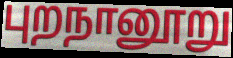
புறநானூறு